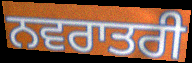
ਨਵਰਾਤਰੀ